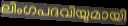
ലിംഗപദവിയുമായി